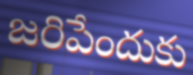
జరిపేందుకు